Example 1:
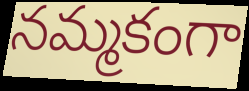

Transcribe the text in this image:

నమ్మకంగా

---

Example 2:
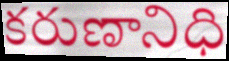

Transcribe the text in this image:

కరుణానిధి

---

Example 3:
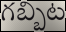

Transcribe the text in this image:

గబ్బిట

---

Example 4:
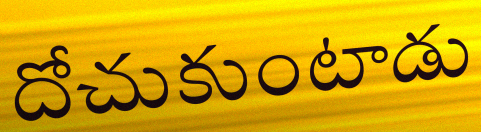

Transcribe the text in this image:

దోచుకుంటాడు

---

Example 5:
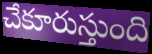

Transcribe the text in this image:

చేకూరుస్తుంది